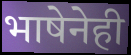
भाषेनेही